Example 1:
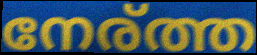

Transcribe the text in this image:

നേര്ത്ത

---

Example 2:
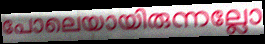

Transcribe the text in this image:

പോലെയായിരുന്നല്ലോ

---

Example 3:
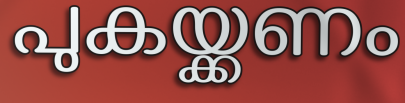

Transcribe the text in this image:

പുകയ്ക്കണം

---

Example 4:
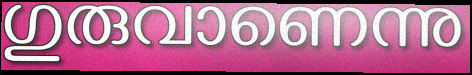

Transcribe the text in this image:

ഗുരുവാണെന്നു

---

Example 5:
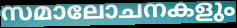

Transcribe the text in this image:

സമാലോചനകളും